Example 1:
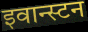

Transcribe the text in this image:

इवान्स्टन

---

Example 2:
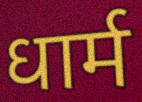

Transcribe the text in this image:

धार्म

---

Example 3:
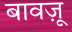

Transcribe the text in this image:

बावज़ू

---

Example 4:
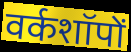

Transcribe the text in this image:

वर्कशॉपों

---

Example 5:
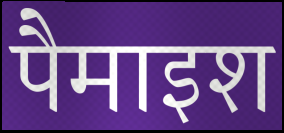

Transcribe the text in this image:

पैमाइश